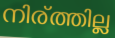
നിര്ത്തില്ല